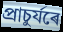
প্ৰাচুৰ্যৰে